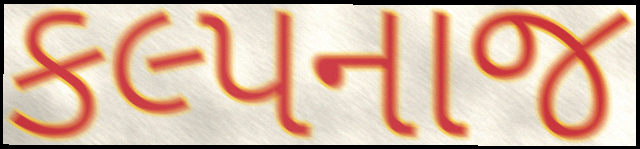
કલ્પનાજ